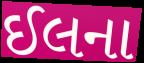
ઈલના